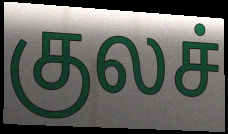
குலச்